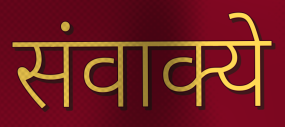
संवाक्ये